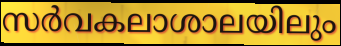
സർവകലാശാലയിലും